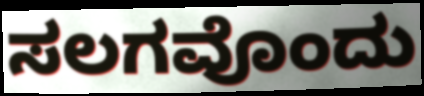
ಸಲಗವೊಂದು